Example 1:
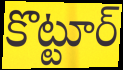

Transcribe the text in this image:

కొట్టూర్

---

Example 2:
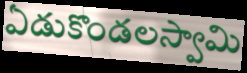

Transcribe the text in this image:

ఏడుకొండలస్వామి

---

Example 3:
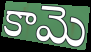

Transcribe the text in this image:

కామె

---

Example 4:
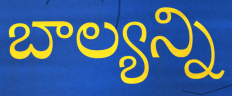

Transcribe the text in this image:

బాల్యన్ని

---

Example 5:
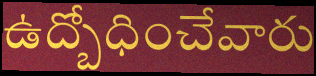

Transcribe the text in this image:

ఉద్బోధించేవారు